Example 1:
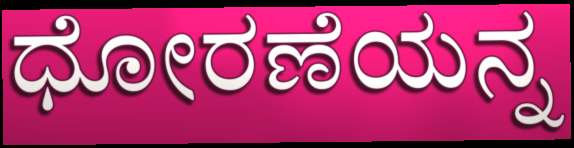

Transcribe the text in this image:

ಧೋರಣೆಯನ್ನ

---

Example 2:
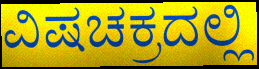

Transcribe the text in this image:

ವಿಷಚಕ್ರದಲ್ಲಿ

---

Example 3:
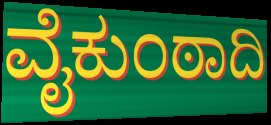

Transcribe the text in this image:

ವೈಕುಂಠಾದಿ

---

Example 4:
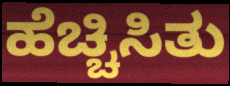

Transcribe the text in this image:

ಹೆಚ್ಚಿಸಿತು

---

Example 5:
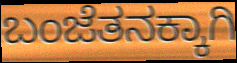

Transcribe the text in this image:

ಬಂಜೆತನಕ್ಕಾಗಿ